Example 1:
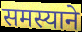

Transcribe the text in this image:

समस्याने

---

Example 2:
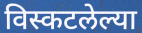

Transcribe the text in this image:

विस्कटलेल्या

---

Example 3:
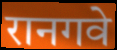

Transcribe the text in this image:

रानगवे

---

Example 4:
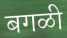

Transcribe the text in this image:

बगळी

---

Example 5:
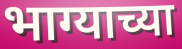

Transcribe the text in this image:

भाग्याच्या